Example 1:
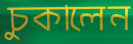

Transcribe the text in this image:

চুকালেন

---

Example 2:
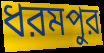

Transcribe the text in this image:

ধরমপুর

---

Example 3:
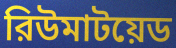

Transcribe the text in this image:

রিউমাটয়েড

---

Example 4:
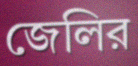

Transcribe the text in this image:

জেলির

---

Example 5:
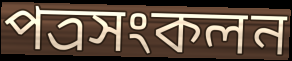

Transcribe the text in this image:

পত্রসংকলন